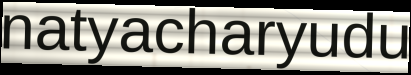
natyacharyudu